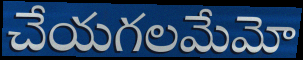
చేయగలమేమో